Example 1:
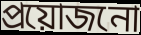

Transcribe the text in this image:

প্ৰয়োজনো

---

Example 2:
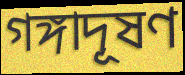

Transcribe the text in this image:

গঙ্গাদূষণ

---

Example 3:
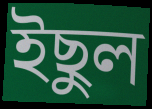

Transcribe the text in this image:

ইছুল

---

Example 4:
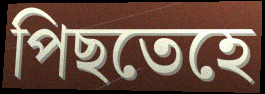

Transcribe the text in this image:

পিছতেহে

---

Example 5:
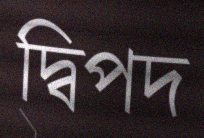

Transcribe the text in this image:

দ্বিপদ